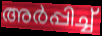
അർപ്പിച്ച്